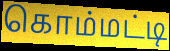
கொம்மட்டி